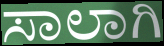
ಸಾಲಾಗಿ